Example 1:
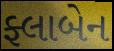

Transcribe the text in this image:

ફ્લાબેન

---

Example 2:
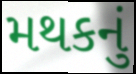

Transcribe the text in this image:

મથકનું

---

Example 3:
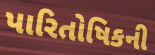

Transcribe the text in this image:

પારિતોષિકની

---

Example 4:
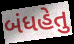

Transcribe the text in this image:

બંધહેતુ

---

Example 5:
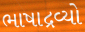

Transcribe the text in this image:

ભાષાદ્રવ્યો